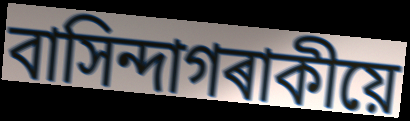
বাসিন্দাগৰাকীয়ে